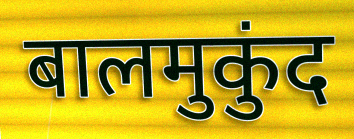
बालमुकुंद